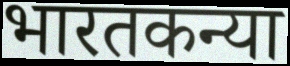
भारतकन्या